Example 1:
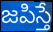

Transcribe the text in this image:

జపిస్తే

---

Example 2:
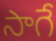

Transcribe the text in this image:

సాగే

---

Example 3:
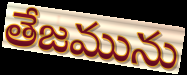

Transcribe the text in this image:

తేజమును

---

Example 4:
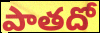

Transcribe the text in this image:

పాతదో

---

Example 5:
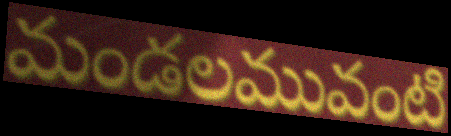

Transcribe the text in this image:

మండలమువంటి